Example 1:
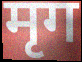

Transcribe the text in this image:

मृग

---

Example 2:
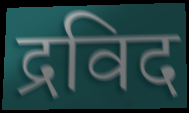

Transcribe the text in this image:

द्रविद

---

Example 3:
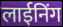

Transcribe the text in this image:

लाईनिंग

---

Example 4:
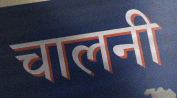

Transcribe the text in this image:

चालनी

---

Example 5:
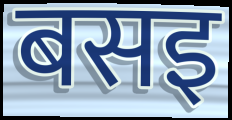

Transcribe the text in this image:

बसइ